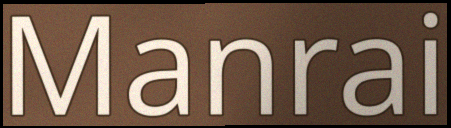
Manrai